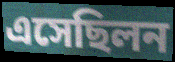
এসেছিলন